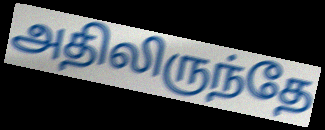
அதிலிருந்தே